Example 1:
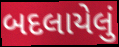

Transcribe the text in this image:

બદલાયેલું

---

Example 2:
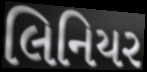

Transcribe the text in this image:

લિનિયર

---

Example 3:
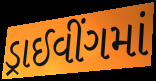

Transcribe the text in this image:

ડ્રાઈવીંગમાં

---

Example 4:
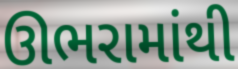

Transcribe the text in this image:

ઊભરામાંથી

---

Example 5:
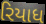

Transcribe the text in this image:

રિયાધ